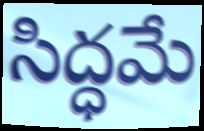
సిద్ధమే